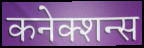
कनेक्शन्स